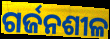
ଗର୍ଜନଶୀଳ